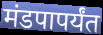
मंडपापर्यंत